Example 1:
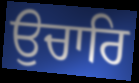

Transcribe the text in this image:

ਉਚਾਰਿ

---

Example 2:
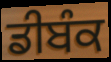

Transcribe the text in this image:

ਡੀਬੰਕ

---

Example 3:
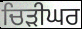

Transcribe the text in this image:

ਚਿੜੀਘਰ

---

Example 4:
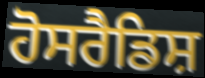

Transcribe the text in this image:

ਹੋਸਰੈਡਿਸ਼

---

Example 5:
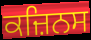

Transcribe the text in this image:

ਕਜ਼ਿਨਸ